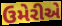
ઉમેરીએ